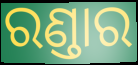
ରଣ୍ଡାର